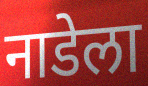
नाडेला